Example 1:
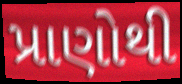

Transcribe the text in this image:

પ્રાણોથી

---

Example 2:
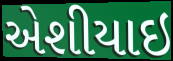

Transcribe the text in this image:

એશીયાઇ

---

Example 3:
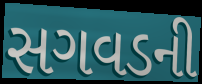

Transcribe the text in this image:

સગવડની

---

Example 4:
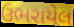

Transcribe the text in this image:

ઉભરાયેલ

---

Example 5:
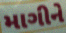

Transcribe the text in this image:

માગીને